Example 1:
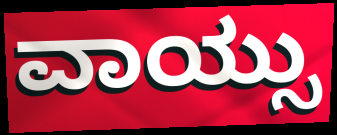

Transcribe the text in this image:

ವಾಯ್ಸು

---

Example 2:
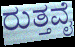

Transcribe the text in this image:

ರುತ್ತವೈ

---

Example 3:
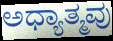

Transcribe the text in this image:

ಅಧ್ಯಾತ್ಮವು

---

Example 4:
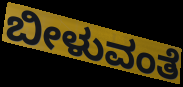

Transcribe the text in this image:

ಬೀಳುವಂತೆ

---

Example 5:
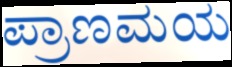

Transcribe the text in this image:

ಪ್ರಾಣಮಯ